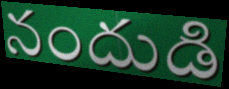
నందుడి